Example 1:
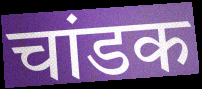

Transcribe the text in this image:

चांडक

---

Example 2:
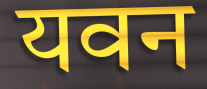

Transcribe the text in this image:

यवन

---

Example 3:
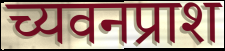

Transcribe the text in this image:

च्यवनप्राश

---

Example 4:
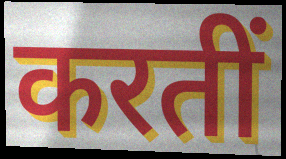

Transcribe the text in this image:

करतीं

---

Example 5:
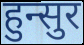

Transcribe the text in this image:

हुन्सुर